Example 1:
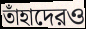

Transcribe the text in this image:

তাঁহাদেরও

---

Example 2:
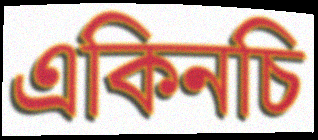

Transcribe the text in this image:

একিনচি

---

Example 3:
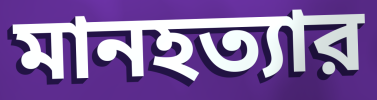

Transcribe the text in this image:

মানহত্যার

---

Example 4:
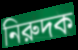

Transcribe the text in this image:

নিরুদক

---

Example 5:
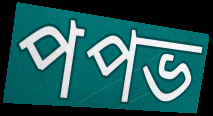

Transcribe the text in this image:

পপভ